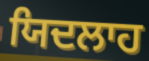
ਯਿਦਲਾਹ